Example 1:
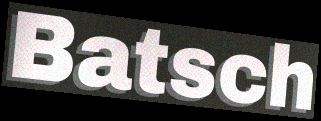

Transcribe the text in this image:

Batsch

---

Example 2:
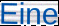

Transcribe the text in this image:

Eine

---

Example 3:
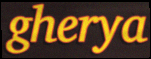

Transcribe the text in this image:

gherya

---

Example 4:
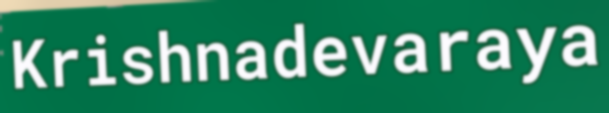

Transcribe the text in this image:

Krishnadevaraya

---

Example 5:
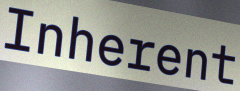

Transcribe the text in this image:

Inherent